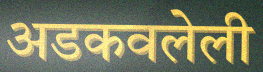
अडकवलेली